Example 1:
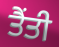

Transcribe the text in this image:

ਤੈਂਤੀ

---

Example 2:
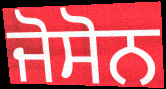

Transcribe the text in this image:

ਜੋਸੋਨ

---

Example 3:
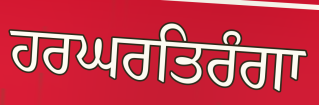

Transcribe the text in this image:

ਹਰਘਰਤਿਰੰਗਾ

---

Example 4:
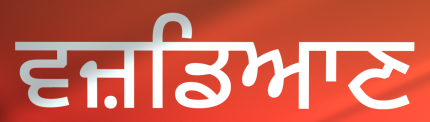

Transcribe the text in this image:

ਵਜ਼ਡਿਆਣ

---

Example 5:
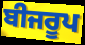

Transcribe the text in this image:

ਬੀਜਰੂਪ